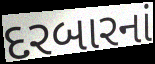
દરબારનાં